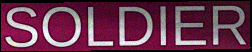
SOLDIER